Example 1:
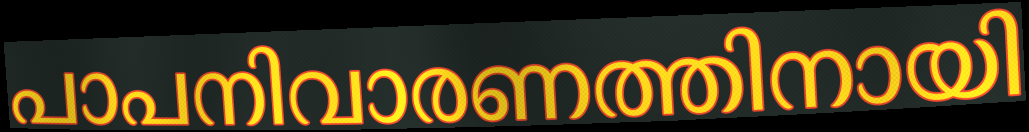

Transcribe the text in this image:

പാപനിവാരണത്തിനായി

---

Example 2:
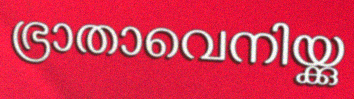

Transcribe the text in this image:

ഭ്രാതാവെനിയ്ക്കു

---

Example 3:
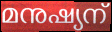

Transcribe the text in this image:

മനുഷ്യന്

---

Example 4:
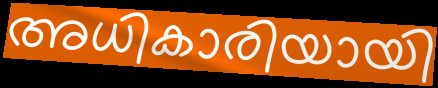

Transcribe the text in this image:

അധികാരിയായി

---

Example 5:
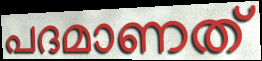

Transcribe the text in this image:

പദമാണത്